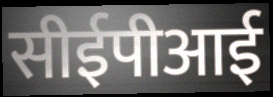
सीईपीआई